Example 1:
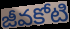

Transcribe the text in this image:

జీవకోటి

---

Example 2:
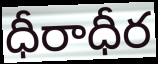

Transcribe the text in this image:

ధీరాధీర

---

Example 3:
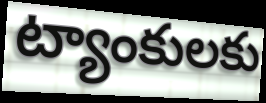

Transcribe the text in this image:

ట్యాంకులకు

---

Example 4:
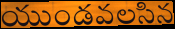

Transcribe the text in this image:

యుండవలసిన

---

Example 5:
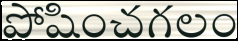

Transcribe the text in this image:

పోషించగలం